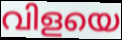
വിളയെ